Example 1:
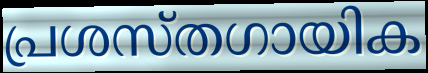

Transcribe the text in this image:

പ്രശസ്തഗായിക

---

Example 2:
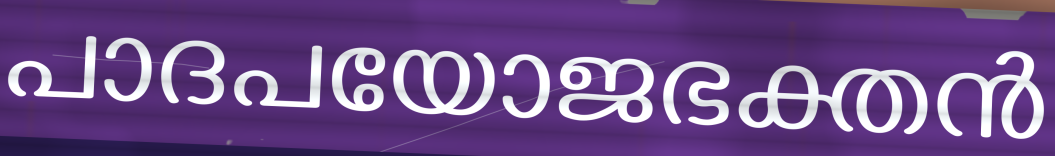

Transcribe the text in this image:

പാദപയോജഭക്തൻ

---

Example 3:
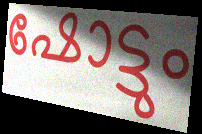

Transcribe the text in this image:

ഷോട്ടും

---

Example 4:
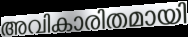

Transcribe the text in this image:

അവികാരിതമായി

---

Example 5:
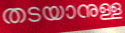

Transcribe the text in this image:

തടയാനുള്ള